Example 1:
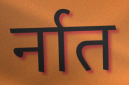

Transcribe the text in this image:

र्नात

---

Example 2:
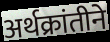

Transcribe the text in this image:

अर्थक्रांतीने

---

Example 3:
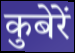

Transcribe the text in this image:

कुबेरें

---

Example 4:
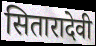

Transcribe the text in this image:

सितारादेवी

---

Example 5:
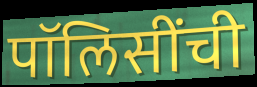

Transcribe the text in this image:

पॉलिसींची